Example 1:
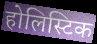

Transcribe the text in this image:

होलिस्टिक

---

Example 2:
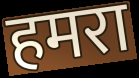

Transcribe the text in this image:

हमरा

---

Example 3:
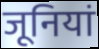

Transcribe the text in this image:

जूनियां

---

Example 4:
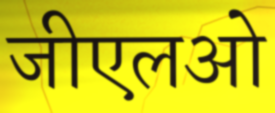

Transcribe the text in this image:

जीएलओ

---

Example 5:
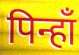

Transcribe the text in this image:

पिन्हाँ